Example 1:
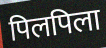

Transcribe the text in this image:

पिलपिला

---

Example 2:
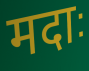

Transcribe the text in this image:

मदाः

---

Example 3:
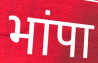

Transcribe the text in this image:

भांपा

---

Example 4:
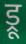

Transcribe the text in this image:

ड्रू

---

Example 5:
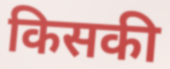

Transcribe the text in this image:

किसकी